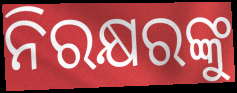
ନିରକ୍ଷରଙ୍କୁ